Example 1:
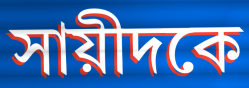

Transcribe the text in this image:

সায়ীদকে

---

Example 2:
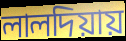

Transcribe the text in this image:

লালদিয়ায়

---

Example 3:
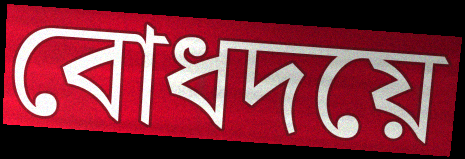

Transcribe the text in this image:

বোধদয়ে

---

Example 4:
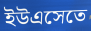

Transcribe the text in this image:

ইউএসেতে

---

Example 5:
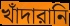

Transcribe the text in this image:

খাঁদারানি